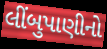
લીંબુપાણીનો